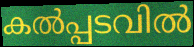
കൽപ്പടവിൽ